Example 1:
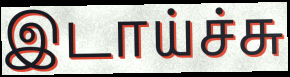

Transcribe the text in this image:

இடாய்ச்சு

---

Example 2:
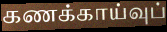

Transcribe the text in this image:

கணக்காய்வுப்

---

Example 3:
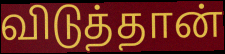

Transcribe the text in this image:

விடுத்தான்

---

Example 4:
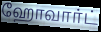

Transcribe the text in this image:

ஹோவார்ட்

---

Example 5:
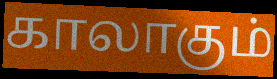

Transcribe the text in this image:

காலாகும்